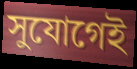
সুযোগেই